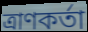
ত্ৰাণকৰ্তা